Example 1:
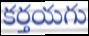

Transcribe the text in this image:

కర్తయగు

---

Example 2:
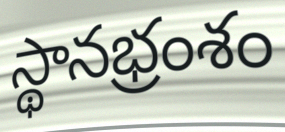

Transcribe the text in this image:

స్థానభ్రంశం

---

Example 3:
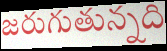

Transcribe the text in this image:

జరుగుతున్నది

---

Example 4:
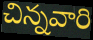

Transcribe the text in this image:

చిన్నవారి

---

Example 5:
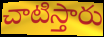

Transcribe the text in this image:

చాటిస్తారు